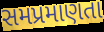
સમપ્રમાણતા